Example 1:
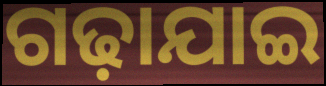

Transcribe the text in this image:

ଗଢ଼ାଯାଇ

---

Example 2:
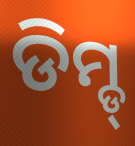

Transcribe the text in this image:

ଡିମ୍ଡ୍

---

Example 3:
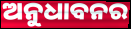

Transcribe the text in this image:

ଅନୁଧାବନର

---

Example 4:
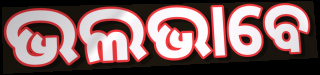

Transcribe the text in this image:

ଭଲଭାବେ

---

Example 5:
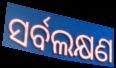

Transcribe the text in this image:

ସର୍ବଲକ୍ଷଣ